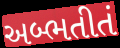
અબ્ભતીતં